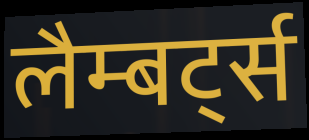
लैम्बर्ट्स